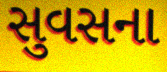
સુવસના